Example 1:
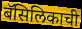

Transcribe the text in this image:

बॅसिलिकाची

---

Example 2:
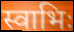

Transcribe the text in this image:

स्वाभिः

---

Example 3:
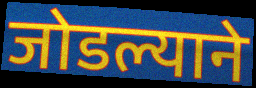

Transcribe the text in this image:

जोडल्याने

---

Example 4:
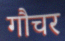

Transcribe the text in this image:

गौचर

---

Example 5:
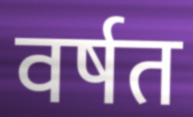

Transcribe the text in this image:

वर्षत